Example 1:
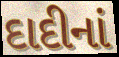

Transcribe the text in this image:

દાદીનાં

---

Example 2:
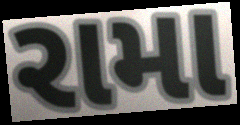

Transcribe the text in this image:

રામા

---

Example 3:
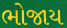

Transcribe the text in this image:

ભોજાય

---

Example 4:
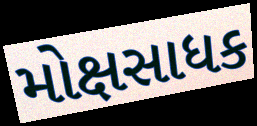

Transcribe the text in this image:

મોક્ષસાધક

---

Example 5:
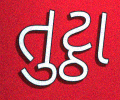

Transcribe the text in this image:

તુટ્ઠા